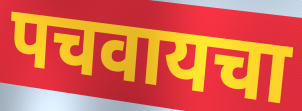
पचवायचा